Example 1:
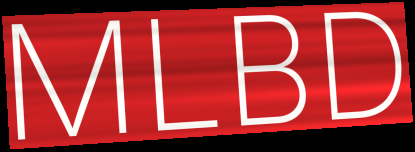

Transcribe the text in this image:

MLBD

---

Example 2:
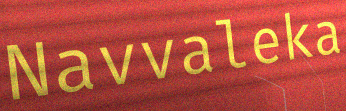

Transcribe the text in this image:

Navvaleka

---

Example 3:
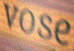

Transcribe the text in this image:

vose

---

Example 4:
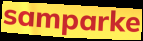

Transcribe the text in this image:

samparke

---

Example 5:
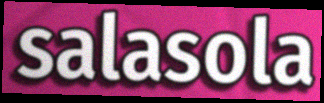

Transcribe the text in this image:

salasola